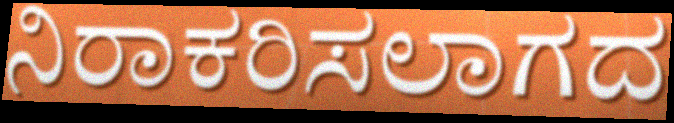
ನಿರಾಕರಿಸಲಾಗದ